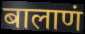
बालाणं